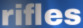
rifles